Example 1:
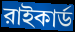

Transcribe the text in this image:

রাইকার্ড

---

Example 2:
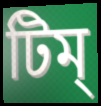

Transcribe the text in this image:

টিম্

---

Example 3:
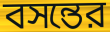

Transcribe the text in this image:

বসন্তের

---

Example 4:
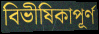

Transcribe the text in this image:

বিভীষিকাপূর্ণ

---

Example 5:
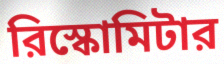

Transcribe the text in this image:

রিস্কোমিটার